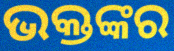
ଭକ୍ତଙ୍କର